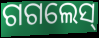
ଗଗଲେସ୍